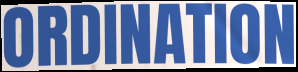
ORDINATION